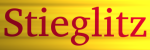
Stieglitz